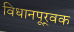
विधानपूर्वक